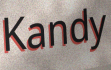
Kandy